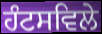
ਹੰਟਸਵਿਲੇ